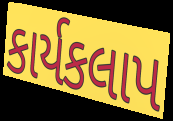
કાર્યકલાપ